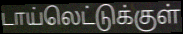
டாய்லெட்டுக்குள்